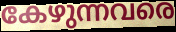
കേഴുന്നവരെ